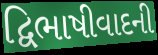
દ્વિભાષીવાદની